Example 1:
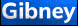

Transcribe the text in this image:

Gibney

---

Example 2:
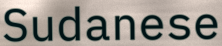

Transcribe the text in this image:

Sudanese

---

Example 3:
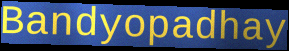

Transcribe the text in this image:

Bandyopadhay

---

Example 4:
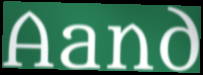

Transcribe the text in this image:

Aand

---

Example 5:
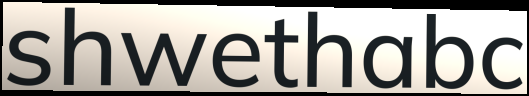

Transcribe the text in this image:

shwethabc